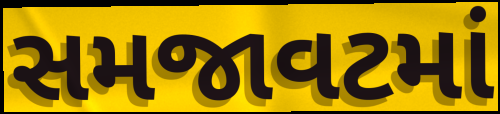
સમજાવટમાં